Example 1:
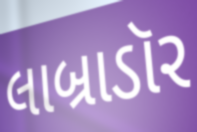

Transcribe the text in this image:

લાબ્રાડૉર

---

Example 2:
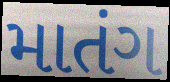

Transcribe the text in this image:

માતંગ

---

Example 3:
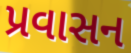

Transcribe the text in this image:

પ્રવાસન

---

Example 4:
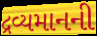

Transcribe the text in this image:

દ્રવ્યમાનની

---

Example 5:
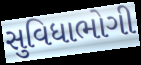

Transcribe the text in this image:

સુવિધાભોગી